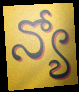
న్యో